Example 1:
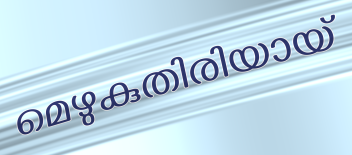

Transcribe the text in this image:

മെഴുകുതിരിയായ്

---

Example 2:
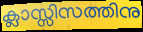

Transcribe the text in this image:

ക്ലാസ്സിസത്തിനു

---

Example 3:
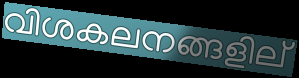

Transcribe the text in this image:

വിശകലനങ്ങളില്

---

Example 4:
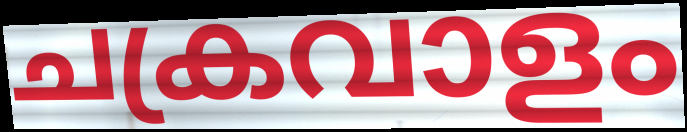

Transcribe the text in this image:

ചക്രവാളം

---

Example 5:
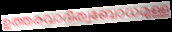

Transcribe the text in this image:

ഉത്തരവാദിത്വബോധമുള്ള